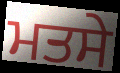
ਮਤਸੇ